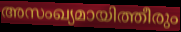
അസംഖ്യമായിത്തീരും